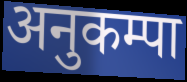
अनुकम्पा